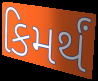
કિમર્થં